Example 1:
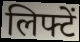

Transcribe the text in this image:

लिफ्टें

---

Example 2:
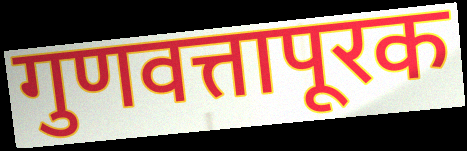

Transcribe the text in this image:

गुणवत्तापूरक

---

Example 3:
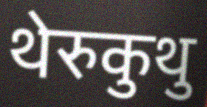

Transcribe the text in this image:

थेरुकुथु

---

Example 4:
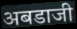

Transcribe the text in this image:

अबडाजी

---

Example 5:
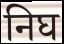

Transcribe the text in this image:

निघ